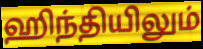
ஹிந்தியிலும்